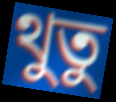
থুতু